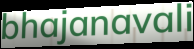
bhajanavali